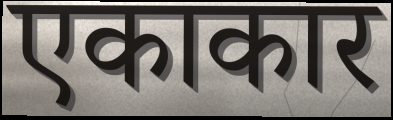
एकाकार